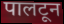
पालटून